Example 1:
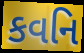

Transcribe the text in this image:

કવનિ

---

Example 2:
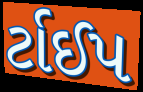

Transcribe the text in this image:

ર્ટાઈપ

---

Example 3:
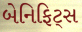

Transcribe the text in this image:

બેનિફિટ્સ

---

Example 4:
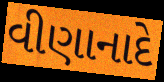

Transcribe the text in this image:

વીણાનાદે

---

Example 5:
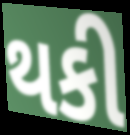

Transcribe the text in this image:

થકી